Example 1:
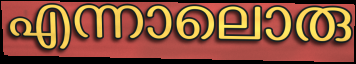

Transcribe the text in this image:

എന്നാലൊരു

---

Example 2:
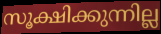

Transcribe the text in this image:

സൂക്ഷിക്കുന്നില്ല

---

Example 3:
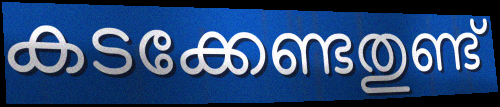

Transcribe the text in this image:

കടക്കേണ്ടതുണ്ട്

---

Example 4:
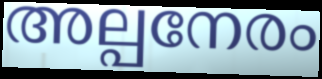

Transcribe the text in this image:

അല്പനേരം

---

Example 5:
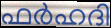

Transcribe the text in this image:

ഫർഹദി